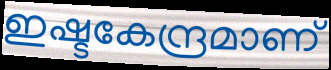
ഇഷ്ടകേന്ദ്രമാണ്